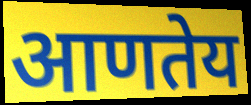
आणतेय